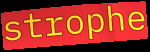
strophe